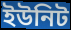
ইউনিট